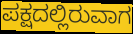
ಪಕ್ಷದಲ್ಲಿರುವಾಗ